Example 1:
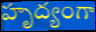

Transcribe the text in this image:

హృద్యంగా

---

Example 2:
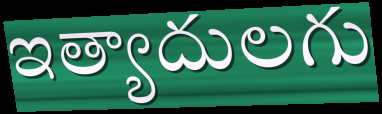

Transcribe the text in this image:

ఇత్యాదులగు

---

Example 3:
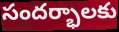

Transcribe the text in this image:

సందర్భాలకు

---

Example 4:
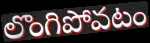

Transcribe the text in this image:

లొంగిపోవటం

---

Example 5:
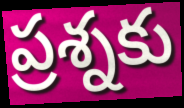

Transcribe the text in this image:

ప్రశ్నకు